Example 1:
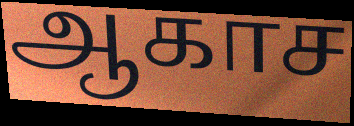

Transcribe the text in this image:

ஆகாச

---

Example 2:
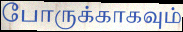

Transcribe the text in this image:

போருக்காகவும்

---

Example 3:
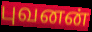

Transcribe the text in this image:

புவனன்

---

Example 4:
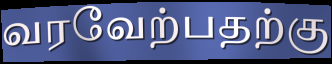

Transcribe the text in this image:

வரவேற்பதற்கு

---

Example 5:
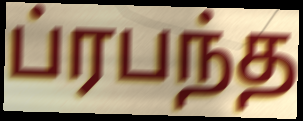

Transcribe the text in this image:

ப்ரபந்த